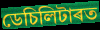
ডেচিলিটাৰত